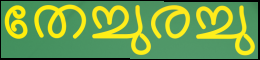
തേച്ചുരച്ചു